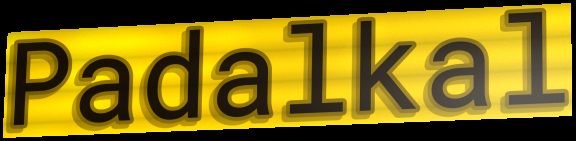
Padalkal